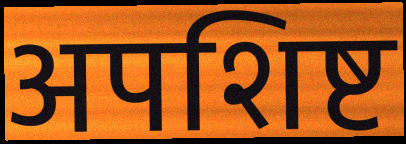
अपशिष्ट